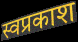
स्वप्रकाश